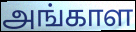
அங்காள